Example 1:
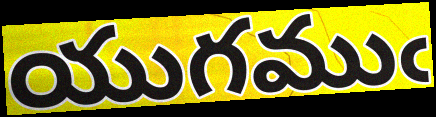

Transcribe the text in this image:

యుగముఁ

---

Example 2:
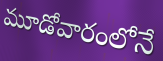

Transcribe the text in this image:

మూడోవారంలోనే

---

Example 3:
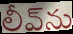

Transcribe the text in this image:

లీవ్‌ను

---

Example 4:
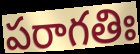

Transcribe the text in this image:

పరాగతిః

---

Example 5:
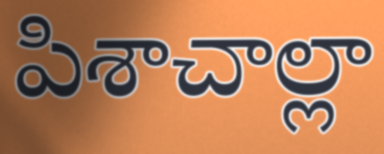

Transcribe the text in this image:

పిశాచాల్లా